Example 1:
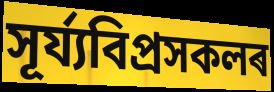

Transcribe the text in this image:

সূৰ্য্যবিপ্ৰসকলৰ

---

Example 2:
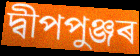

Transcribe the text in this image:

দ্বীপপুঞ্জৰ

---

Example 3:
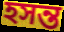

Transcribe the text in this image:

হসন্ত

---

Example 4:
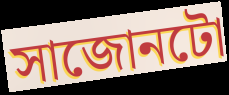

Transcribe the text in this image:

সাজোনটো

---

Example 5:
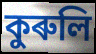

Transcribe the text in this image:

কুৰুলি